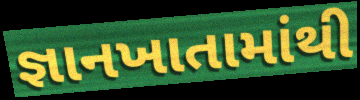
જ્ઞાનખાતામાંથી